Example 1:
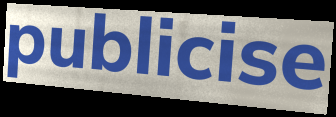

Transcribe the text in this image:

publicise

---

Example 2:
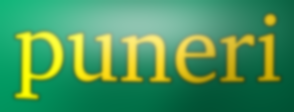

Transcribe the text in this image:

puneri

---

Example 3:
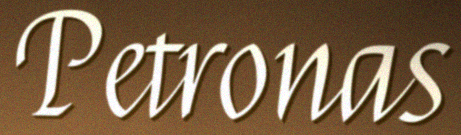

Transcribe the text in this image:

Petronas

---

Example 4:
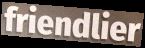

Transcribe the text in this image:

friendlier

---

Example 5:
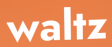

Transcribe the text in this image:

waltz